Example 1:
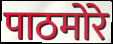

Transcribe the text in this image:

पाठमोरे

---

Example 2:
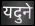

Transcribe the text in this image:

यदुने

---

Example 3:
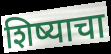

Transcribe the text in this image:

शिष्याचा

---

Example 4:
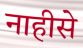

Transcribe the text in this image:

नाहीसे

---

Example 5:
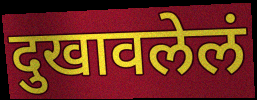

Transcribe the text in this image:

दुखावलेलं